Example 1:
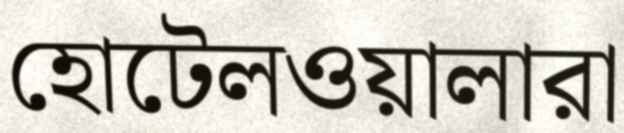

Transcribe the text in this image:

হোটেলওয়ালারা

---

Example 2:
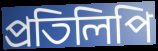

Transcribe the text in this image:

প্রতিলিপি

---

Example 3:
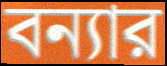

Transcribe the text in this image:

বন্যার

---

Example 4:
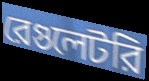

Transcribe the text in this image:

রেগুলেটরি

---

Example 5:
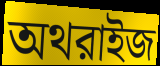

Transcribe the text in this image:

অথরাইজ